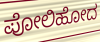
ಪೋಲಿಹೋದ